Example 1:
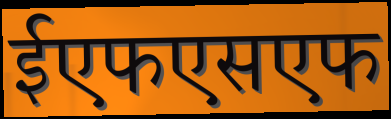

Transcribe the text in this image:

ईएफएसएफ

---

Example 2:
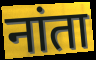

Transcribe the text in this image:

नांता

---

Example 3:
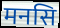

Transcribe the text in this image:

मनसि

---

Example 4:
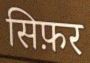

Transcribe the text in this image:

सिफ़र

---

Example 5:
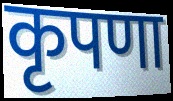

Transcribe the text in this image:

कृपणा